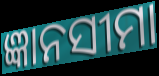
ଜ୍ଞାନସୀମା